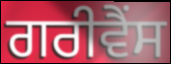
ਗਰੀਵੈਂਸ